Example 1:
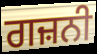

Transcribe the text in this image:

ਗਜ਼ਨੀ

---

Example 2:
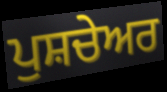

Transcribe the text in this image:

ਪੁਸ਼ਚੇਅਰ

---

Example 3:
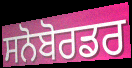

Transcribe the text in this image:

ਸਨੋਬੋਰਡਰ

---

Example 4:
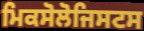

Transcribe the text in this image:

ਮਿਕਸੋਲੋਜਿਸਟਸ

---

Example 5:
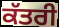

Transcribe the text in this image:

ਕੱਤਰੀ